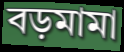
বড়মামা